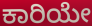
ಕಾರಿಯೇ